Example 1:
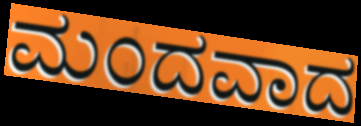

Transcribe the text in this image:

ಮಂದವಾದ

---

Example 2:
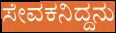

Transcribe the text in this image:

ಸೇವಕನಿದ್ದನು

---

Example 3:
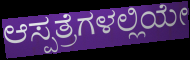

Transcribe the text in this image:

ಆಸ್ಪತ್ರೆಗಳಲ್ಲಿಯೇ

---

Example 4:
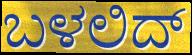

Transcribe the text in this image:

ಬಳಲಿದ್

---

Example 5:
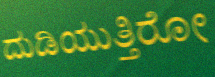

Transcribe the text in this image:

ದುಡಿಯುತ್ತಿರೋ